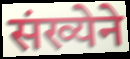
संख्येने